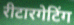
रीटारगेटिंग